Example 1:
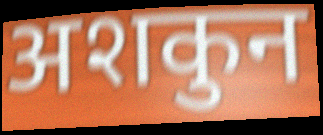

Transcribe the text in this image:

अशकुन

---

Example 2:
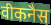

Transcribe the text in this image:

वीकनैस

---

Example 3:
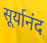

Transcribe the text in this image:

सूर्यानंद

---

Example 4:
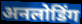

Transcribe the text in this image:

अनलोडिंग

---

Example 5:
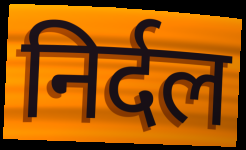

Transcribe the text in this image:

निर्दल